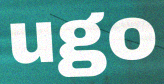
ugo